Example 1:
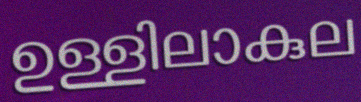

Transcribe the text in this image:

ഉള്ളിലാകുല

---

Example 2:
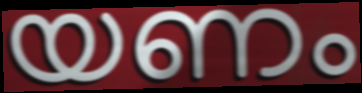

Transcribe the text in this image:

യണം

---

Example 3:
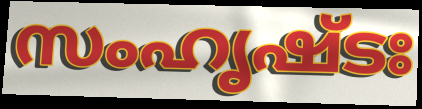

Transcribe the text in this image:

സംഹൃഷ്ടഃ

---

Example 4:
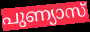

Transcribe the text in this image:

പുണ്യാസ്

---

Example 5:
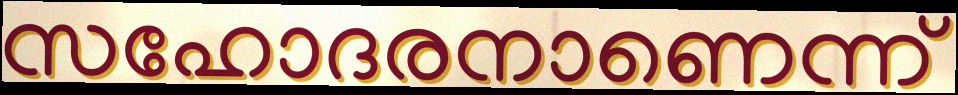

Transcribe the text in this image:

സഹോദരനാണെന്ന്